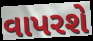
વાપરશે